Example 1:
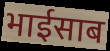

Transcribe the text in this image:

भाईसाब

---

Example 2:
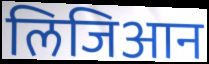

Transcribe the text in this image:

लिजिआन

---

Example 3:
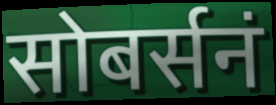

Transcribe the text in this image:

सोबर्सनं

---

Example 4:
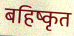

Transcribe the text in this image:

बहिष्कृत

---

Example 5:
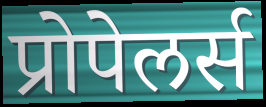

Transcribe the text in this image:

प्रोपेलर्स